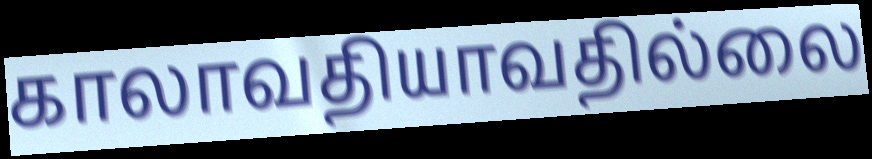
காலாவதியாவதில்லை